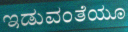
ಇಡುವಂತೆಯೂ